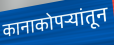
कानाकोपर्‍यांतून